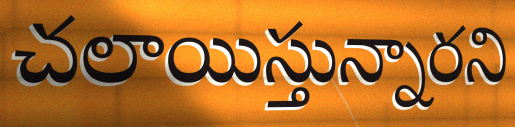
చలాయిస్తున్నారని